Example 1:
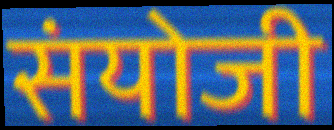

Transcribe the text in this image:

संयोजी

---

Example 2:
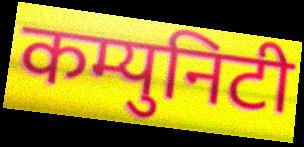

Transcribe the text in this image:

कम्युनिटी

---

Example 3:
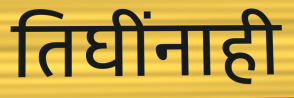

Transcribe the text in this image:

तिघींनाही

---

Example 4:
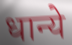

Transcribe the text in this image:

धान्ये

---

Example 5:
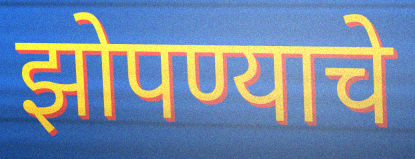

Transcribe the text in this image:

झोपण्याचे